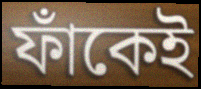
ফাঁকেই